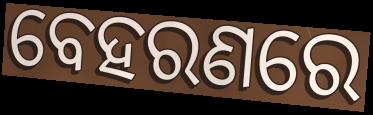
ବେହରଣରେ